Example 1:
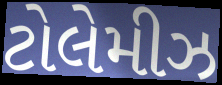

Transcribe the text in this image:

ટોલેમીઝ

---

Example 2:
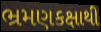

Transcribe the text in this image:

ભ્રમણકક્ષાથી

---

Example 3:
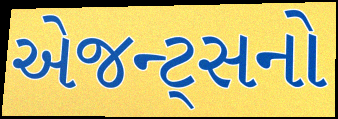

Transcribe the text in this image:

એજન્ટ્સનો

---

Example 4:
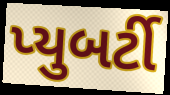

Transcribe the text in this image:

પ્યુબર્ટી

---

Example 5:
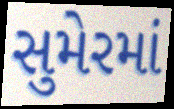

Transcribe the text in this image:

સુમેરમાં